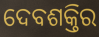
ଦେବଶକ୍ତିର